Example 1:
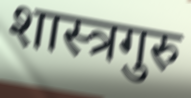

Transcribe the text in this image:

शास्त्रगुरु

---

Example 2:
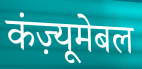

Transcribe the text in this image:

कंज़्यूमेबल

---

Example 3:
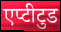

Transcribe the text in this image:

एप्टीटुड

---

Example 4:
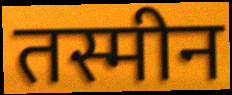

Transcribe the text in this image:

तस्मीन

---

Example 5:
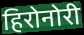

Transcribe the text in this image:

हिरोनोरी